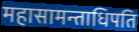
महासामन्ताधिपति